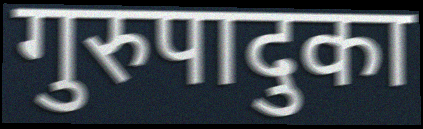
गुरुपादुका